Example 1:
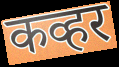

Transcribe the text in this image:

कव्हर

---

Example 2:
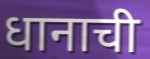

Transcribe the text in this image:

धानाची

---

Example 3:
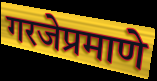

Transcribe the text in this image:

गरजेप्रमाणे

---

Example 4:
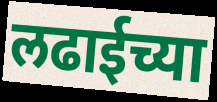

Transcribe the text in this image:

लढाईच्या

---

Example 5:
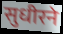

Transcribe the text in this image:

सुधीरने